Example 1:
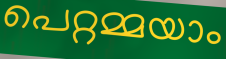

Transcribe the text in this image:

പെറ്റമ്മയാം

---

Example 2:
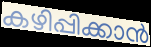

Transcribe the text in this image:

കഴിപ്പിക്കാൻ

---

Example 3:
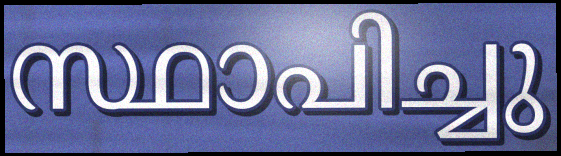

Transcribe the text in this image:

സ്ഥാപിച്ചു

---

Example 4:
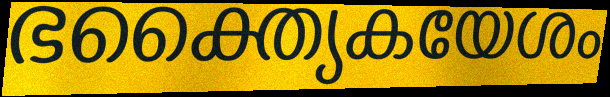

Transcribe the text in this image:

ഭക്ത്യൈകയേശം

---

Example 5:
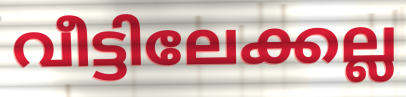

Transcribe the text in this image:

വീട്ടിലേക്കല്ല